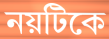
নয়টিকে